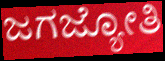
ಜಗಜ್ಯೋತಿ